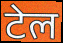
टेल